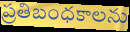
ప్రతిబంధకాలను